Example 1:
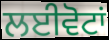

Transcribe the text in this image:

ਲਈਵੋਟਾਂ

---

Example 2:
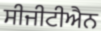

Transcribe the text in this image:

ਸੀਜੀਟੀਐਨ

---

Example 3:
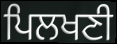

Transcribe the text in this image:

ਪਿਲਖਣੀ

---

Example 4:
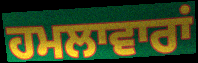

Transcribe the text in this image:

ਹਮਲਾਵਾਰਾਂ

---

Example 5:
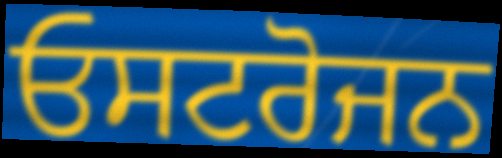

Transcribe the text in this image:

ਓਸਟਰੋਜਨ